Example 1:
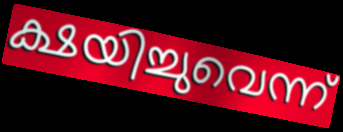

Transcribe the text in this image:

ക്ഷയിച്ചുവെന്ന്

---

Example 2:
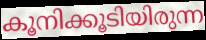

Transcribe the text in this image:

കൂനിക്കൂടിയിരുന്ന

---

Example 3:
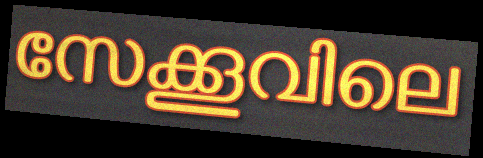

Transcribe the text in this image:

സേക്കൂവിലെ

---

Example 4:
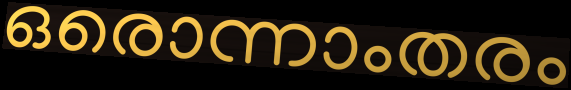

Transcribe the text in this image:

ഒരൊന്നാംതരം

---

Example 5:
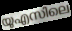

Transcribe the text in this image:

യുഎസിലെ